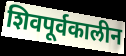
शिवपूर्वकालीन